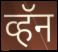
व्हॅन